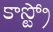
కాస్ట్రో